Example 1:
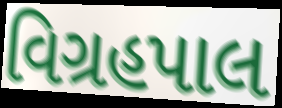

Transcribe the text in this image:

વિગ્રહપાલ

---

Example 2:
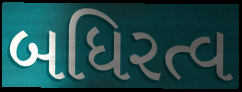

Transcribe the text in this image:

બધિરત્વ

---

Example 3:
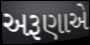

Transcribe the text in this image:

અરૂણાએ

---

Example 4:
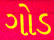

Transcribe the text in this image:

ગોડ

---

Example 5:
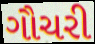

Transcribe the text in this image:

ગૌચરી